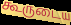
கூருடைய